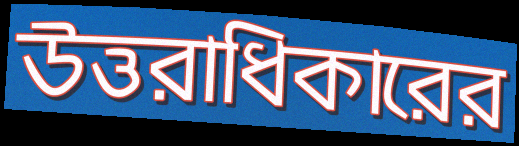
উত্তরাধিকারের